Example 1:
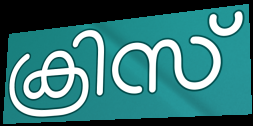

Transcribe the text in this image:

ക്രിസ്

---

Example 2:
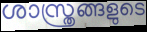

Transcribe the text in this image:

ശാസ്ത്രങ്ങളുടെ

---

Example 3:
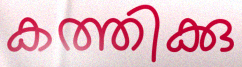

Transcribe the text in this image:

കത്തിക്കു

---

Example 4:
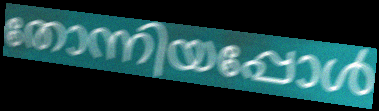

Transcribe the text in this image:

തോന്നിയപ്പോൾ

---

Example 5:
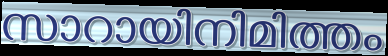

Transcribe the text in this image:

സാറായിനിമിത്തം